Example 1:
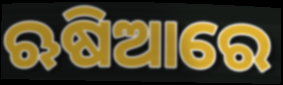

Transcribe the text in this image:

ଋଷିଆରେ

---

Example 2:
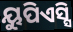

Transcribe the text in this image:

ୟୁପିଏସ୍ସି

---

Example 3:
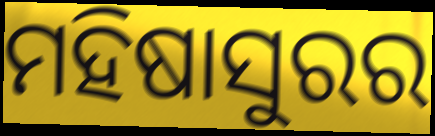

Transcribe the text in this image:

ମହିଷାସୁରର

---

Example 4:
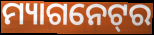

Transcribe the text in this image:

ମ୍ୟାଗନେଟ୍‌ର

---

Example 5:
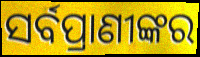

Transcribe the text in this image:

ସର୍ବପ୍ରାଣୀଙ୍କର